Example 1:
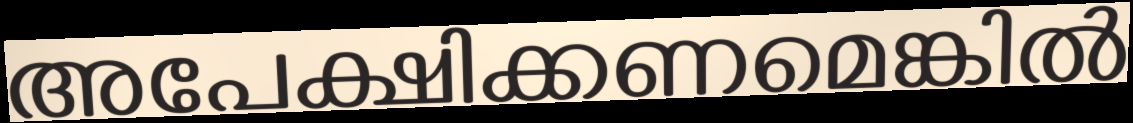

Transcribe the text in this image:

അപേക്ഷിക്കണമെങ്കിൽ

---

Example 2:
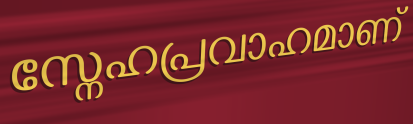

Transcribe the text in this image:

സ്നേഹപ്രവാഹമാണ്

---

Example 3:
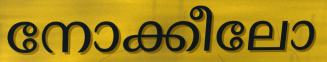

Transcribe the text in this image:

നോക്കീലോ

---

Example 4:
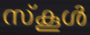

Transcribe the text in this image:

സ്‌കൂൾ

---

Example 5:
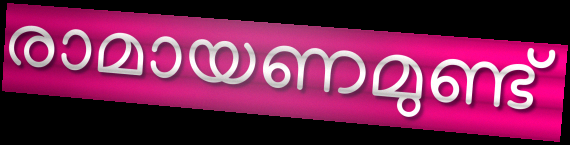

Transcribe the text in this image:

രാമായണമുണ്ട്